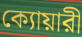
ক্যোয়ারী